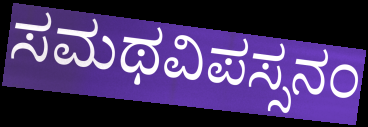
ಸಮಥವಿಪಸ್ಸನಂ